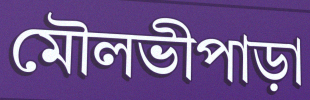
মৌলভীপাড়া